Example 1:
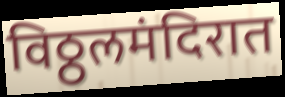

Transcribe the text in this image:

विठ्ठलमंदिरात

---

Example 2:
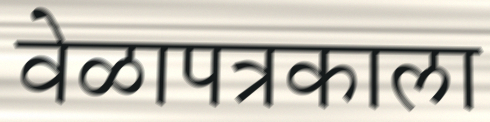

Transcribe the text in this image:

वेळापत्रकाला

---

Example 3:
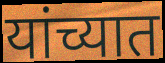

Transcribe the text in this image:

यांच्यात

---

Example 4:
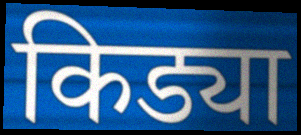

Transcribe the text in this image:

किड्या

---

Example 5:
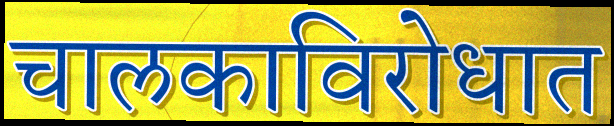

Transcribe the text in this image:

चालकाविरोधात